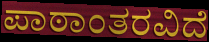
ಪಾಠಾಂತರವಿದೆ